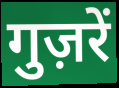
गुज़रें